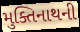
મુક્તિનાથની